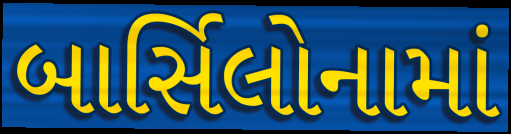
બાર્સિલોનામાં